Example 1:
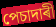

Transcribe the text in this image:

পেচাদাৰী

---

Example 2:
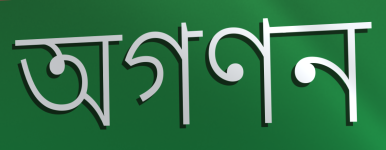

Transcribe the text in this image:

অগণন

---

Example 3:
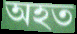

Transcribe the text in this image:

অহত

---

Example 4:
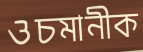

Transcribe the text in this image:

ওচমানীক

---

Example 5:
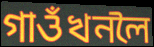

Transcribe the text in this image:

গাওঁখনলৈ